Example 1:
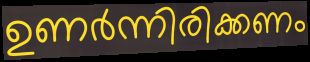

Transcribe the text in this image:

ഉണർന്നിരിക്കണം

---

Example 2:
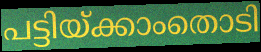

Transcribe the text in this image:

പട്ടിയ്ക്കാംതൊടി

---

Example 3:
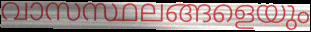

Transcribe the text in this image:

വാസസ്ഥലങ്ങളെയും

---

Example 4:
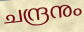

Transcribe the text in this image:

ചന്ദ്രനും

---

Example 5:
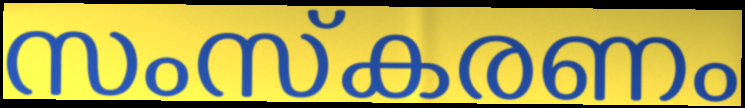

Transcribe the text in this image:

സംസ്‌കരണം